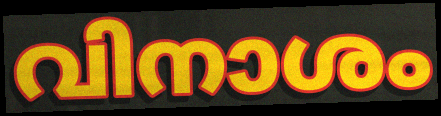
വിനാശം